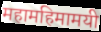
महामहिमामयी